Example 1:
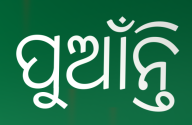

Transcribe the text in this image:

ପୁଆଁନ୍ତି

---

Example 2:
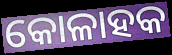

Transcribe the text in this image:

କୋଳାହକ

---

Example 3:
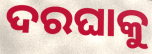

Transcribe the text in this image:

ଦରଘାକୁ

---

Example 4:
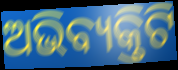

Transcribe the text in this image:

ଅଭିବ୍ୟକ୍ତିଟି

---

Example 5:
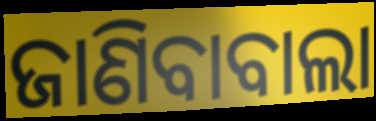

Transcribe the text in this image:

ଜାଣିବାବାଲା